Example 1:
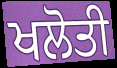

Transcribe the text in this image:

ਖਲੋਤੀ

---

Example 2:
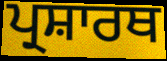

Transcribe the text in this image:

ਪ੍ਰਸ਼ਾਰਥ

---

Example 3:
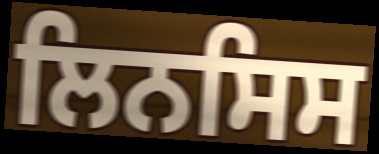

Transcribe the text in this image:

ਲਿਨਸਿਸ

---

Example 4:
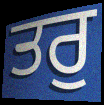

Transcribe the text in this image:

ਤਰੁ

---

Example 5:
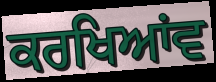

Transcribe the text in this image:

ਕਰਖਿਆਂਵ